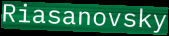
Riasanovsky